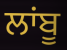
ਲਾਂਬੂ